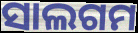
ସାଲଗମ